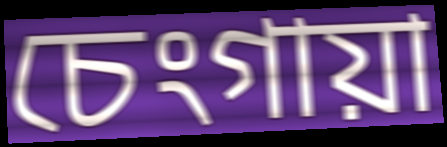
চেংগায়া